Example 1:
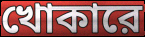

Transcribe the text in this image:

খোকারে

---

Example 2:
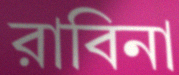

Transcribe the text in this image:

রাবিনা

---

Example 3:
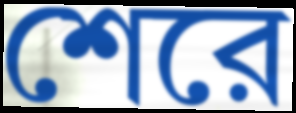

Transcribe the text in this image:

শেরে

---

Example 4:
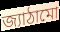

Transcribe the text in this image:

জ্যাঠামো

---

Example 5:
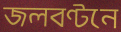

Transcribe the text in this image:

জলবণ্টনে